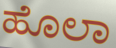
ಹೊಲಾ